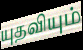
யுதவியும்